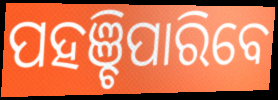
ପହଞ୍ଚିପାରିବେ